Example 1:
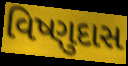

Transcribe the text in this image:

વિષ્ણુદાસ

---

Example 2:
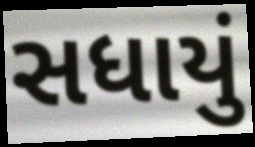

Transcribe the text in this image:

સધાયું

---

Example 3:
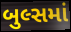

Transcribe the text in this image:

બુલ્સમાં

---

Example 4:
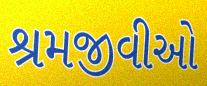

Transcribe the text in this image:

શ્રમજીવીઓ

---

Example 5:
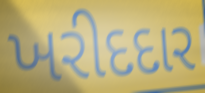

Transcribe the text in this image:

ખરીદદાર